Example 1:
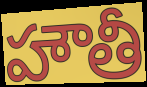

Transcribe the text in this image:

హౌతీ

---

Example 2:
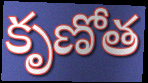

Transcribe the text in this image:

కృణోత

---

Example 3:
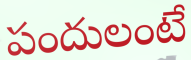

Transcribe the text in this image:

పందులంటే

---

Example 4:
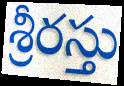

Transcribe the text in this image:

శ్రీరస్తు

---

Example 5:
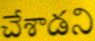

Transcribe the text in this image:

చేశాడని